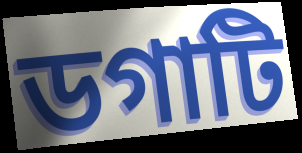
ডগাটি